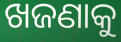
ଖଜଣାକୁ